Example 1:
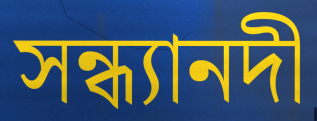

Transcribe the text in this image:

সন্ধ্যানদী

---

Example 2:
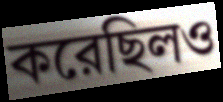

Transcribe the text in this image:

করেছিলও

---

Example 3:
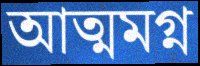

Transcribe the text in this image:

আত্মমগ্ন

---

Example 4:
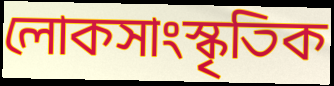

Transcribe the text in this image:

লোকসাংস্কৃতিক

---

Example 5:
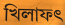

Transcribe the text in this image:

খিলাফৎ